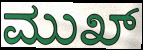
ಮುಖ್